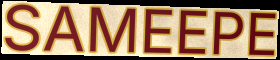
SAMEEPE